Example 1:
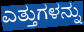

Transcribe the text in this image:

ಎತ್ತುಗಳನ್ನು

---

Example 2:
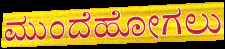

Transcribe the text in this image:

ಮುಂದೆಹೋಗಲು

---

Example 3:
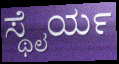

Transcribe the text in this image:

ಸ್ಥೈರ್ಯ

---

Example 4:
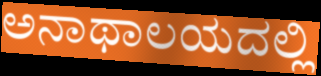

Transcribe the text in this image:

ಅನಾಥಾಲಯದಲ್ಲಿ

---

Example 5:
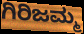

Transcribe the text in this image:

ಗಿರಿಜಮ್ಮ